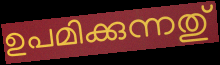
ഉപമിക്കുന്നതു്